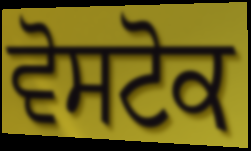
ਵੋਸਟੋਕ